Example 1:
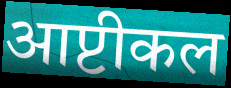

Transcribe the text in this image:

आप्टीकल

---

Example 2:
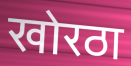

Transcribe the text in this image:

खोरठा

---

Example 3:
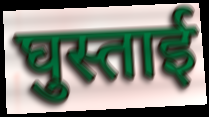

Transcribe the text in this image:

घुस्ताई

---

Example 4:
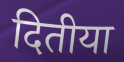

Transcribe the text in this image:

दितीया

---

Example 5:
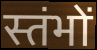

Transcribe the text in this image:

स्तंभों